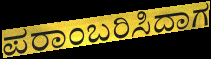
ಪರಾಂಬರಿಸಿದಾಗ